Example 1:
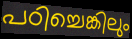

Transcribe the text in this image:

പഠിച്ചെങ്കിലും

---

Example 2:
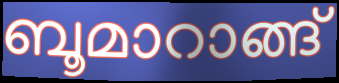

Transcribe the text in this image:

ബൂമാറാങ്ങ്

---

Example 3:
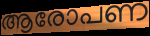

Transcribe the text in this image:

ആരോപണ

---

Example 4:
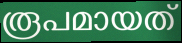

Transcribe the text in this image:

രൂപമായത്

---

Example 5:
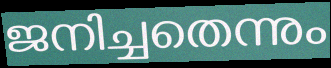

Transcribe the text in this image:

ജനിച്ചതെന്നും